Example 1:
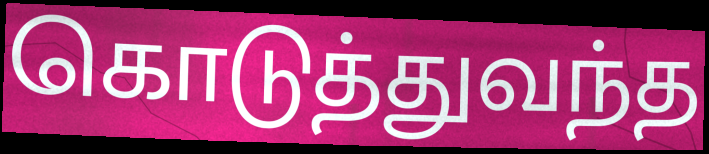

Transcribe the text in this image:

கொடுத்துவந்த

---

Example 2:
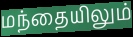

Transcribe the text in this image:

மந்தையிலும்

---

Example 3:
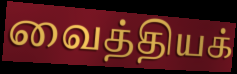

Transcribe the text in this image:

வைத்தியக்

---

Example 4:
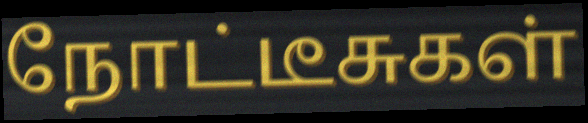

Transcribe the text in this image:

நோட்டீசுகள்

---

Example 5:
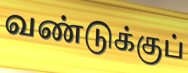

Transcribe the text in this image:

வண்டுக்குப்